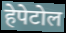
हेपेटोल